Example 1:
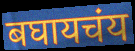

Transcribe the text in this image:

बघायचंय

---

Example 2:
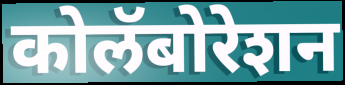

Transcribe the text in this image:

कोलॅबोरेशन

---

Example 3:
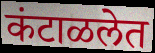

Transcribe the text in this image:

कंटाळलेत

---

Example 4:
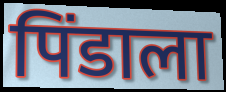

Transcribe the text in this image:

पिंडाला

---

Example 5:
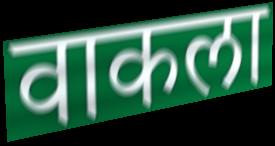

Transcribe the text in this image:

वाकला